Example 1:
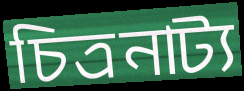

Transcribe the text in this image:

চিত্ৰনাট্য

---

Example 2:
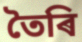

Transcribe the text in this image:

তৈৰি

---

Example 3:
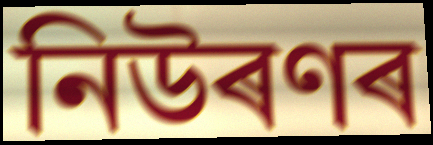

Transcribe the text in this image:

নিউৰণৰ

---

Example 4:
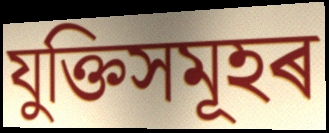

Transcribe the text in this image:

যুক্তিসমূহৰ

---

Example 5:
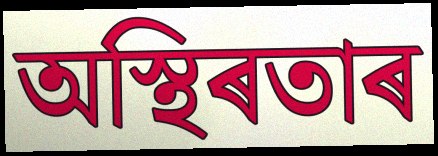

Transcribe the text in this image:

অস্থিৰতাৰ